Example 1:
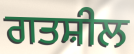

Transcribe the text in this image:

ਗਤਸ਼ੀਲ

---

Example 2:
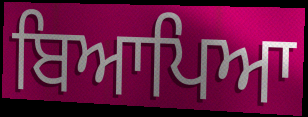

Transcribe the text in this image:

ਬਿਆਪਿਆ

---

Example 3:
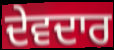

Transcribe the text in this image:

ਦੇਵਦਾਰ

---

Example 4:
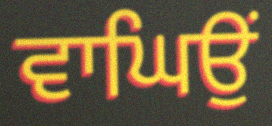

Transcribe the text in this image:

ਵਾਘਿਉਂ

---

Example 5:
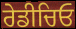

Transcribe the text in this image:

ਰੇਡੀਚਿਓ